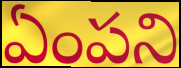
ఏంపని